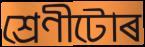
শ্ৰেণীটোৰ